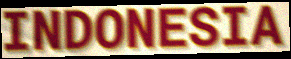
INDONESIA